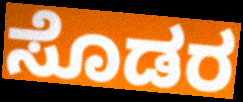
ಸೊಡರ